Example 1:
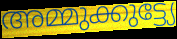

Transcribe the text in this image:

അമ്മുക്കുട്ട്യേ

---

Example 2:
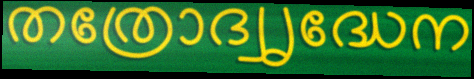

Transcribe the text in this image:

തത്രോദ്വൃദ്ധേന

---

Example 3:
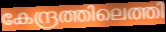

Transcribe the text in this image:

കേന്ദ്രത്തിലെത്തി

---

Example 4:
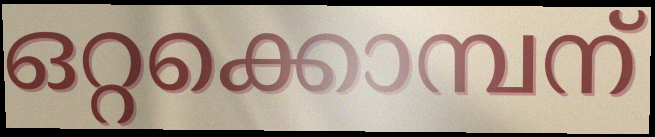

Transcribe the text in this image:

ഒറ്റക്കൊമ്പന്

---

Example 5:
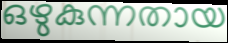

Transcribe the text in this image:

ഒഴുകുന്നതായ